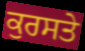
ਕੁਰਸਤੇ